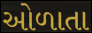
ઓળાતા